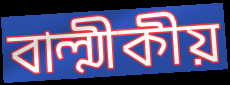
বাল্মীকীয়